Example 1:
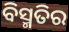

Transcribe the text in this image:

ବିସ୍ମତିର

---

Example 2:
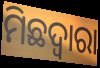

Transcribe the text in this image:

ମିଛଦ୍ଵାରା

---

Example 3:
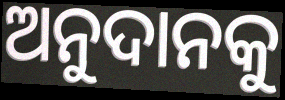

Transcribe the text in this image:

ଅନୁଦାନକୁ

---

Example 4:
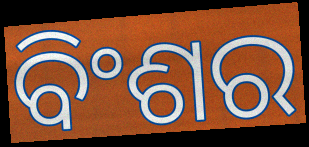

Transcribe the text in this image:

ବିଂଶର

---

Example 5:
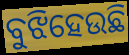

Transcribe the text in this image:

ବୁଝିହେଉଛି